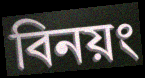
বিনয়ং